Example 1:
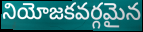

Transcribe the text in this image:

నియోజకవర్గమైన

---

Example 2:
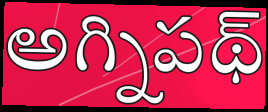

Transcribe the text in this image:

అగ్నిపథ్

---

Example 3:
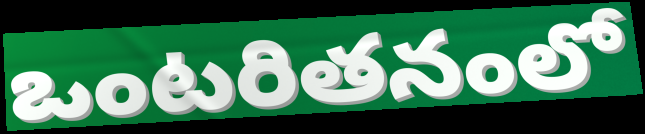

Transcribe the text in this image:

ఒంటరితనంలో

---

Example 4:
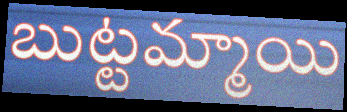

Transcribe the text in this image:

బుట్టమ్మాయి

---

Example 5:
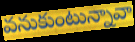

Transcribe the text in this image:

వనుకుంటున్నావా